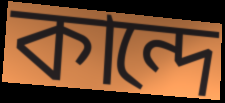
কান্দে